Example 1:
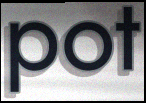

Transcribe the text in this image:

pot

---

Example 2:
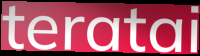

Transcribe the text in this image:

teratai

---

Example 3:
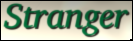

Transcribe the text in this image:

Stranger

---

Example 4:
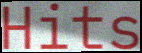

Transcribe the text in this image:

Hits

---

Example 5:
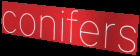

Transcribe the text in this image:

conifers